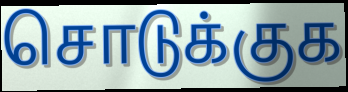
சொடுக்குக